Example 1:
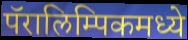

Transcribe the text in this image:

पॅरालिम्पिकमध्ये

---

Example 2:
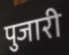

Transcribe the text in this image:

पुजारी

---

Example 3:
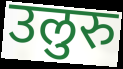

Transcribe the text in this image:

उलुरु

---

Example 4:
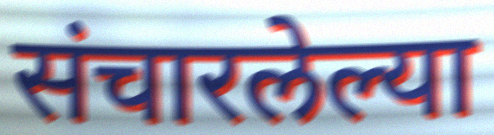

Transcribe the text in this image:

संचारलेल्या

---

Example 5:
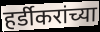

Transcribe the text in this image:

हर्डीकरांच्या